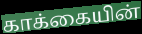
காக்கையின்